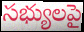
సభ్యులపై